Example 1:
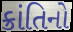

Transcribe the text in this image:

ક્રાંતિનો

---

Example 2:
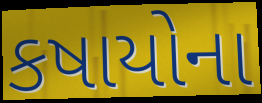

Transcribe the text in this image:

કષાયોના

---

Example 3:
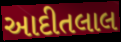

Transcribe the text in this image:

આદીતલાલ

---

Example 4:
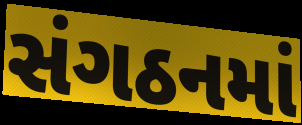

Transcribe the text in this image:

સંગઠનમાં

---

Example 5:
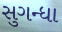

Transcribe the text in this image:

સુગન્ધા